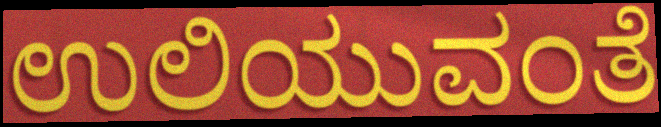
ಉಲಿಯುವಂತೆ